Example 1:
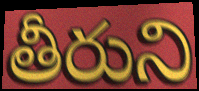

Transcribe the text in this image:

తీరుని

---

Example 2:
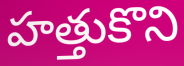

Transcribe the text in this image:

హత్తుకొని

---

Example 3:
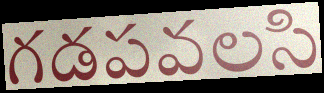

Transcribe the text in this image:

గడపవలసి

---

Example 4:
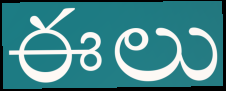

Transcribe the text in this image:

ఈలు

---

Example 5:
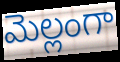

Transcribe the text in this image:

మెల్లంగా